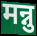
मन्नु